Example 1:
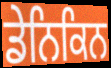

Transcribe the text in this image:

ਡੇਨਿਕਿਨ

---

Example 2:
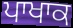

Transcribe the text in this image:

ਪਾਖਾਕ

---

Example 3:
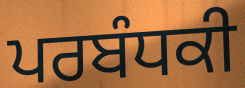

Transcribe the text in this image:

ਪਰਬੰਧਕੀ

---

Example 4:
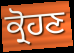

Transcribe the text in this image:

ਕ੍ਰੋਹਣ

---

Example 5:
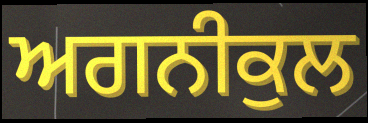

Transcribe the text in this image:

ਅਗਨੀਕੁਲ